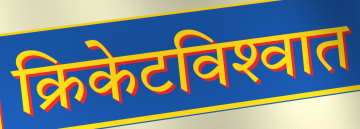
क्रिकेटविश्‍वात